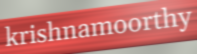
krishnamoorthy